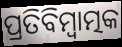
ପ୍ରତିବିମ୍ବାତ୍ମକ